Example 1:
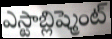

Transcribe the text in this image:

ఎస్టాబ్లిష్మెంట్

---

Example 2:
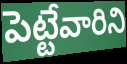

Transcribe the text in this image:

పెట్టేవారిని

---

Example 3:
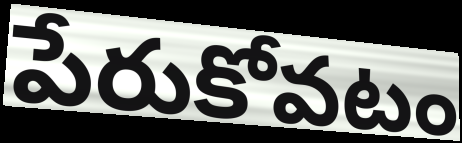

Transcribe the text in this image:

పేరుకోవటం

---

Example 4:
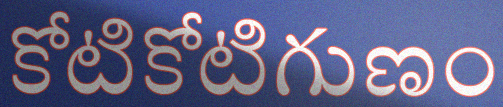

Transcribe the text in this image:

కోటికోటిగుణం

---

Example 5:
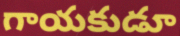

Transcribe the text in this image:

గాయకుడూ